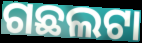
ଗଛଲଟା